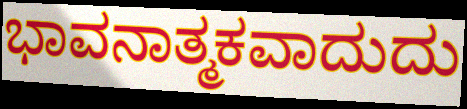
ಭಾವನಾತ್ಮಕವಾದುದು